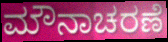
ಮೌನಾಚರಣೆ